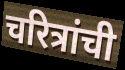
चरित्रांची